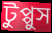
টুপ্পুস